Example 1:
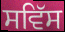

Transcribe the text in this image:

ਸਵਿੱਸ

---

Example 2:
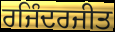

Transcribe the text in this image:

ਰਜਿੰਦਰਜੀਤ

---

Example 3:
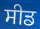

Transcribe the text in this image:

ਸੀਡ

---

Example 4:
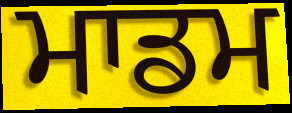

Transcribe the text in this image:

ਮਾਡਮ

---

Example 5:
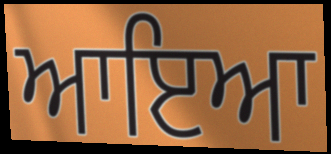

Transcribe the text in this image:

ਆਇਆ